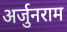
अर्जुनराम